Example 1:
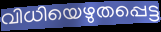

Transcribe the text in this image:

വിധിയെഴുതപ്പെട്ട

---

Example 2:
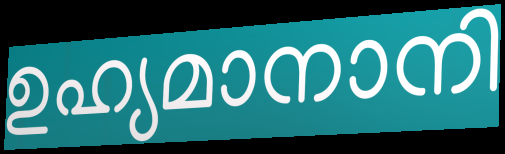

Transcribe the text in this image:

ഉഹ്യമാനാനി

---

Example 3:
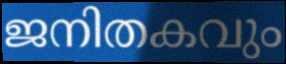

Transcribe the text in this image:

ജനിതകവും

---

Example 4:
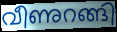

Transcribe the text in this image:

വീണുറങ്ങി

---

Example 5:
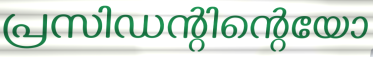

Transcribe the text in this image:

പ്രസിഡന്റിന്റെയോ